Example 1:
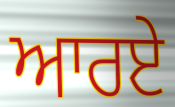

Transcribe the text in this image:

ਆਰਏ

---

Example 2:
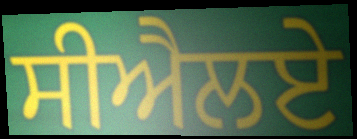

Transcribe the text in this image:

ਸੀਐਲਏ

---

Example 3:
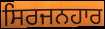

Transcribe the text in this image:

ਸਿਰਜਨਹਾਰ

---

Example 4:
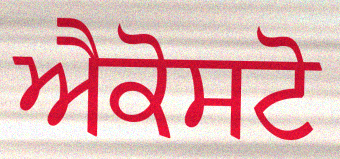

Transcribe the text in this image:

ਐਕੋਸਟੋ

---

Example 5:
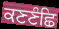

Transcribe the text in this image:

ਕਣਣੰਛਿ